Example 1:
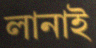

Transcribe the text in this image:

লানাই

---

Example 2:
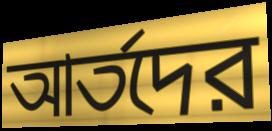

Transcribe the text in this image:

আর্তদের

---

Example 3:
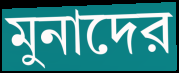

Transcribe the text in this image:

মুনাদের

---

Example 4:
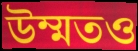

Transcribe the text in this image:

উম্মতও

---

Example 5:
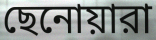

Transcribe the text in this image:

ছেনোয়ারা